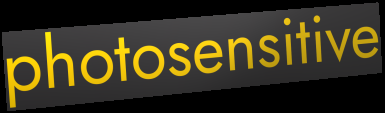
photosensitive